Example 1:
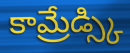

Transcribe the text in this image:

కామ్రేడ్స్కి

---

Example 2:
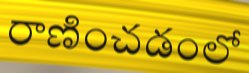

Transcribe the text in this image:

రాణించడంలో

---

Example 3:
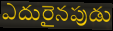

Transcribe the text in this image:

ఎదురైనపుడు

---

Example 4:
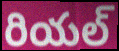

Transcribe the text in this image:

రియల్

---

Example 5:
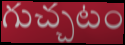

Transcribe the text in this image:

గుచ్చటం